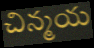
చిన్మయ